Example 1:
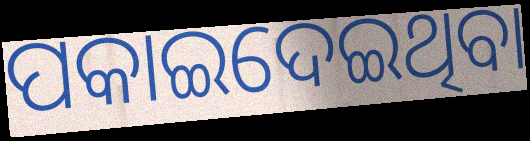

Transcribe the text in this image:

ପକାଇଦେଇଥିବା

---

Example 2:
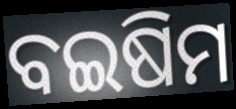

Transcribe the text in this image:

ବଇଷିମ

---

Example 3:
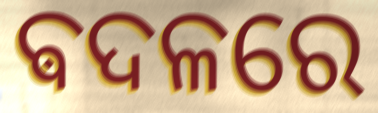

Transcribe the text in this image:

ଵଦଳରେ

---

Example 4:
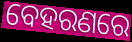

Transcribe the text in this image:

ବେହରଣରେ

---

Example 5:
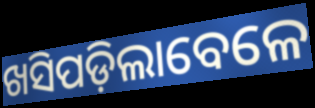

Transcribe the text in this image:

ଖସିପଡ଼ିଲାବେଳେ